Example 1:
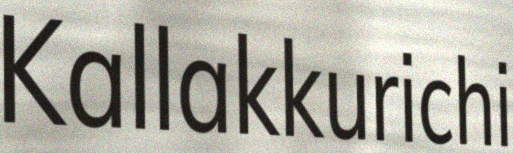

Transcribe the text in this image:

Kallakkurichi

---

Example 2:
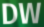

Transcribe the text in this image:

DW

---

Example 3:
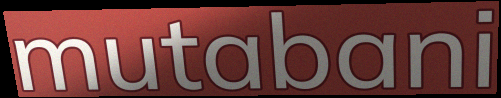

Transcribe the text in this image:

mutabani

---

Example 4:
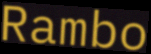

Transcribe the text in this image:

Rambo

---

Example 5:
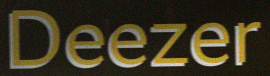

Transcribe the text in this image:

Deezer